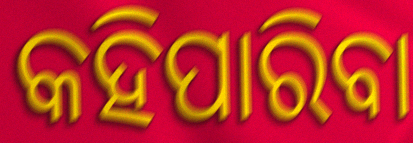
କହିପାରିବା